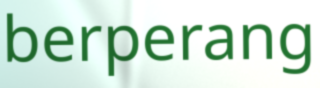
berperang